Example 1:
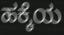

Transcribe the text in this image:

ಹಕ್ಕೆಯ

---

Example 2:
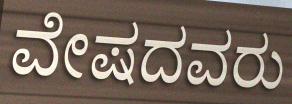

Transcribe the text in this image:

ವೇಷದವರು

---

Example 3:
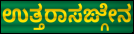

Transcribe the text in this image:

ಉತ್ತರಾಸಙ್ಗೇನ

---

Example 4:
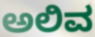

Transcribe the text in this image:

ಅಲಿವ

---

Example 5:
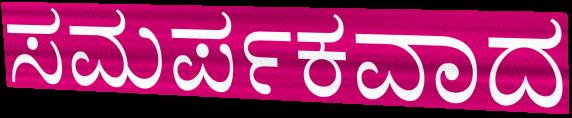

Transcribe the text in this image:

ಸಮರ್ಪಕವಾದ